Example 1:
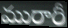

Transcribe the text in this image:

మురారీ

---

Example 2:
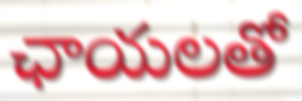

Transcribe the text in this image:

ఛాయలతో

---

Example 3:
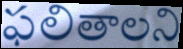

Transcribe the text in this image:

ఫలితాలని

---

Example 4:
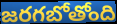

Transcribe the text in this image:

జరగబోతోంది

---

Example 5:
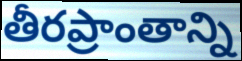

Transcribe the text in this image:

తీరప్రాంతాన్ని